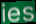
ies